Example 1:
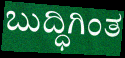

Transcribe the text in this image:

ಬುದ್ಧಿಗಿಂತ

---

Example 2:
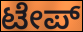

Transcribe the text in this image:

ಟೇಪ್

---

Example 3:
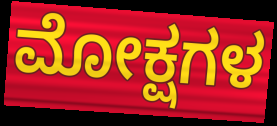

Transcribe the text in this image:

ಮೋಕ್ಷಗಳ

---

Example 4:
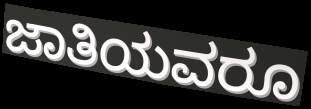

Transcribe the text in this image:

ಜಾತಿಯವರೂ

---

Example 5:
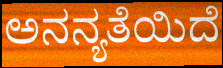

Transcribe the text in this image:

ಅನನ್ಯತೆಯಿದೆ